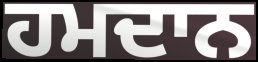
ਹਮਦਾਨ